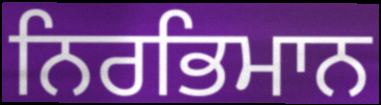
ਨਿਰਭਿਮਾਨ